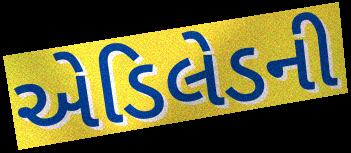
એડિલેડની